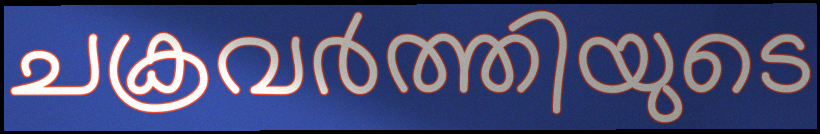
ചക്രവർത്തിയുടെ